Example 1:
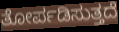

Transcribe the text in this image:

ತೋರ್ಪಡಿಸುತ್ತದೆ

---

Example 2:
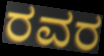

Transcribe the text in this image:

ರವರ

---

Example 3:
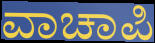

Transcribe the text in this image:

ವಾಚಾಪಿ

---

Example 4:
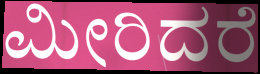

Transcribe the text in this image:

ಮೀರಿದರೆ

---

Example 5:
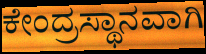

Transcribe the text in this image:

ಕೇಂದ್ರಸ್ಥಾನವಾಗಿ